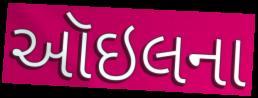
ઑઇલના